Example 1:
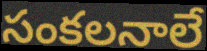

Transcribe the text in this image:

సంకలనాలే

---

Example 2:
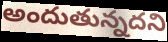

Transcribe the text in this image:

అందుతున్నదని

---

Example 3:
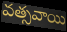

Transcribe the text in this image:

వత్సవాయి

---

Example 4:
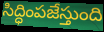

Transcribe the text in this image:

సిద్ధింపజేస్తుంది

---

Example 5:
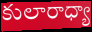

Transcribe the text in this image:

కులారాధ్యా